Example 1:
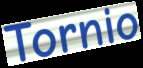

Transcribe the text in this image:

Tornio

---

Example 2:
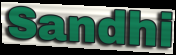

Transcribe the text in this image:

Sandhi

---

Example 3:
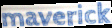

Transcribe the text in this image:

maverick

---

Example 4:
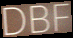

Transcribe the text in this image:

DBF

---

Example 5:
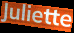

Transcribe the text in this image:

Juliette